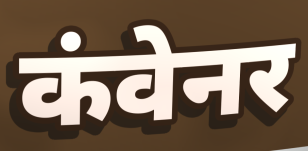
कंवेनर